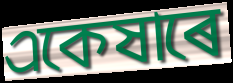
একেষাৰে